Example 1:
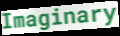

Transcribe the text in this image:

Imaginary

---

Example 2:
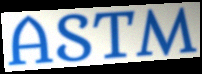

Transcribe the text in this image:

ASTM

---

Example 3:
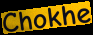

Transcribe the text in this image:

Chokhe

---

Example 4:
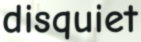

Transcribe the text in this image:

disquiet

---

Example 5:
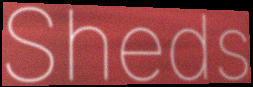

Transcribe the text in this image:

Sheds